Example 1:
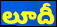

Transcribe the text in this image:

లూదీ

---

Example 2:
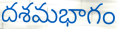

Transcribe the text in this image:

దశమభాగం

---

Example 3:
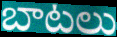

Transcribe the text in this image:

బాటలు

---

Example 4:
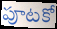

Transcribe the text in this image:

పూటకో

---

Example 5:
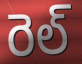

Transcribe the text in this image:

రెల్